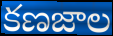
కణజాల